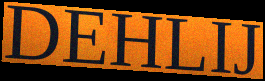
DEHLIJ